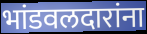
भांडवलदारांना